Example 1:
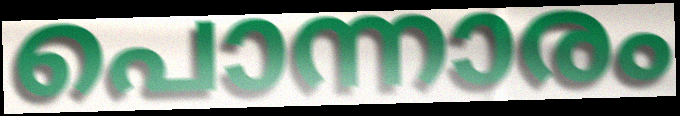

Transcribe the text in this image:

പൊന്നാരം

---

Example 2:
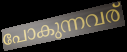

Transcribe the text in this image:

പോകുന്നവര്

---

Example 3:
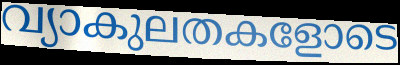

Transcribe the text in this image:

വ്യാകുലതകളോടെ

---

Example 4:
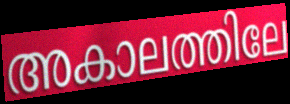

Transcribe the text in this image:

അകാലത്തിലേ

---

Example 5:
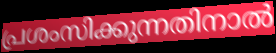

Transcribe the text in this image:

പ്രശംസിക്കുന്നതിനാൽ